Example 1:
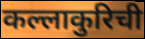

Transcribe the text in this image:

कल्लाकुरिची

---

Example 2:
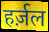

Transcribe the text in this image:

हर्ज़ल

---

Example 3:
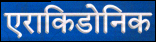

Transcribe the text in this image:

एराकिडोनिक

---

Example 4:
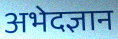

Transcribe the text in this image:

अभेदज्ञान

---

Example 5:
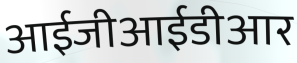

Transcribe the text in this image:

आईजीआईडीआर